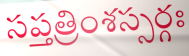
సప్తత్రింశస్సర్గః